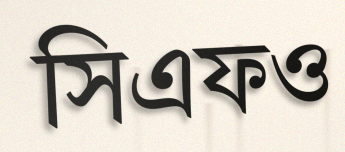
সিএফও